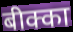
बीक्का